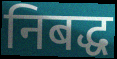
निबद्ध